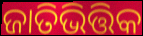
ଜାତିଭିତ୍ତିକ